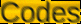
Codes